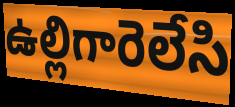
ఉల్లిగారెలేసి